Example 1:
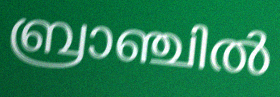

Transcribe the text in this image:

ബ്രാഞ്ചിൽ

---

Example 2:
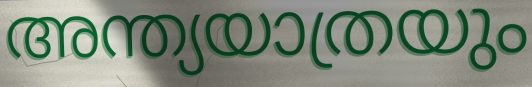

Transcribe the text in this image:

അന്ത്യയാത്രയും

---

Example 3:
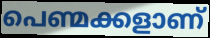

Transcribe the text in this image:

പെണ്മക്കളാണ്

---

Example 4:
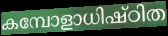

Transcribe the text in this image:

കമ്പോളാധിഷ്ഠിത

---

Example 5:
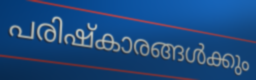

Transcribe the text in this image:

പരിഷ്കാരങ്ങൾക്കും